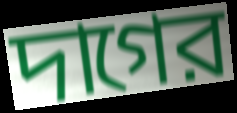
দাগের